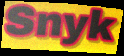
Snyk